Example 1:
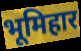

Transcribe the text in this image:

भूमिहार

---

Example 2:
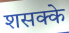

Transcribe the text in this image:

शसक्के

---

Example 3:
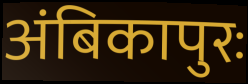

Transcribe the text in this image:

अंबिकापुरः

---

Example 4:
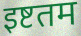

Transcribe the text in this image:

इष्टतम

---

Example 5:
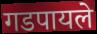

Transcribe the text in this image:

गडपायले